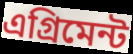
এগ্রিমেন্ট